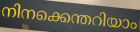
നിനക്കെന്തറിയാം